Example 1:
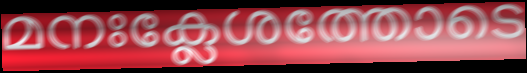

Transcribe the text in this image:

മനഃക്ലേശത്തോടെ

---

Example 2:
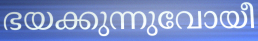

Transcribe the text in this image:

ഭയക്കുന്നുവോയീ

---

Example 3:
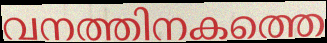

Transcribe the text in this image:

വനത്തിനകത്തെ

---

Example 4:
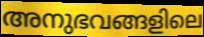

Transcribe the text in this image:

അനുഭവങ്ങളിലെ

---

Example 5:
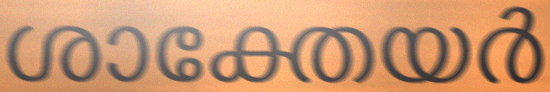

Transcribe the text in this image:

ശാക്തേയർ